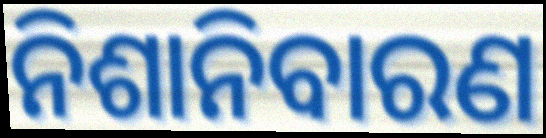
ନିଶାନିବାରଣ